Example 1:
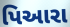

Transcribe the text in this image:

પિઆરા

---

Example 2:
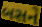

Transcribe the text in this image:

બસને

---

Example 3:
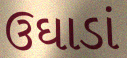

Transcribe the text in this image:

ઉઘાડાં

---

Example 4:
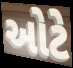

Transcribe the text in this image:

ઓટે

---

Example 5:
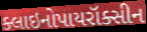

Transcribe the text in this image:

ક્લાઇનોપાયરૉક્સીન